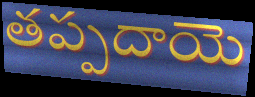
తప్పదాయె